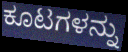
ಕೂಟಗಳನ್ನು